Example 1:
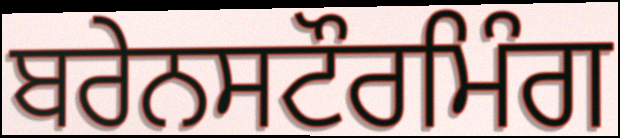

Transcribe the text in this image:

ਬਰੇਨਸਟੌਰਮਿੰਗ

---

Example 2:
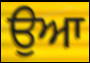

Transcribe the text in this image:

ਉਆ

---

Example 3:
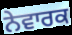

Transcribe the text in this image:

ਨੇਵਾਰਕ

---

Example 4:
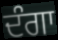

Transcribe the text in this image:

ਦੰਗਾ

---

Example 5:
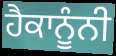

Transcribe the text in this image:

ਹੈਕਾਨੂੰਨੀ